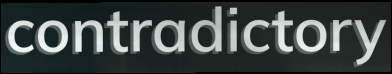
contradictory